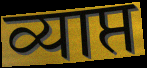
व्याप्त